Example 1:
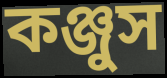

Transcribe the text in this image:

কঞ্জুস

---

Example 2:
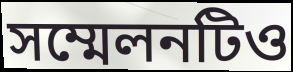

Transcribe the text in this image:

সম্মেলনটিও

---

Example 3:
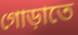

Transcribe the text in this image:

গোড়াতে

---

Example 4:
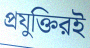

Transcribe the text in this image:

প্রযুক্তিরই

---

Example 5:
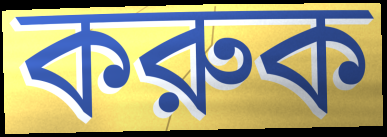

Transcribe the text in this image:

করুক